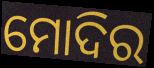
ମୋଦିର